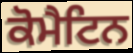
ਕੋਮੈਟਿਨ